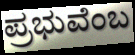
ಪ್ರಭುವೆಂಬ